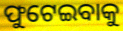
ଫୁଟେଇବାକୁ